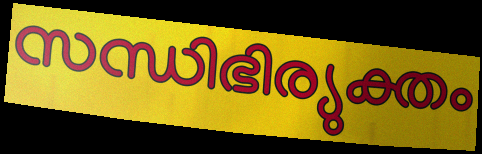
സന്ധിഭിര്യുക്തം